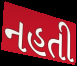
નહતી